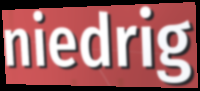
niedrig